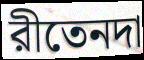
রীতেনদা